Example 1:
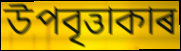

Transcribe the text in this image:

উপবৃত্তাকাৰ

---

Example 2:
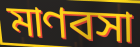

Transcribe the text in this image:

মাণবসা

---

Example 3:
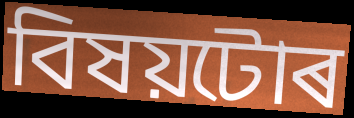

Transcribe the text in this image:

বিষয়টোৰ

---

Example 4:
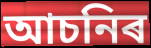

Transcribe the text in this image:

আচনিৰ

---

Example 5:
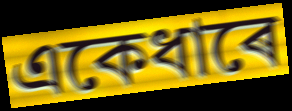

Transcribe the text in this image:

একেধাৰে